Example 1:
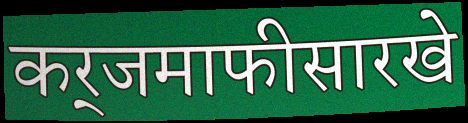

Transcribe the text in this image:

कर्जमाफीसारखे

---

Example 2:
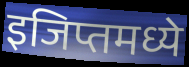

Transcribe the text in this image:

इजिप्तमध्ये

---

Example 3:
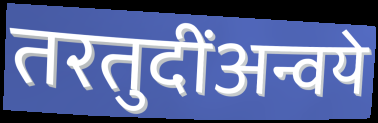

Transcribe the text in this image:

तरतुदींअन्वये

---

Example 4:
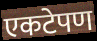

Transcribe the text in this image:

एकटेपण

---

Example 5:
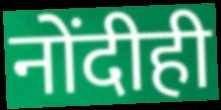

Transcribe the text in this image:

नोंदीही